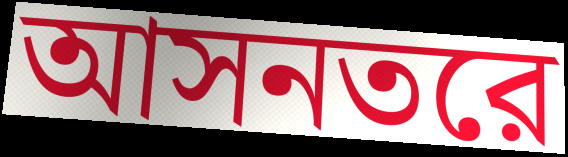
আসনতরে